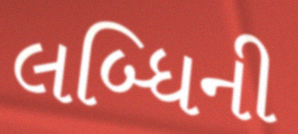
લબ્ધિની